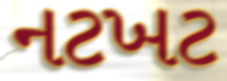
નટખટ